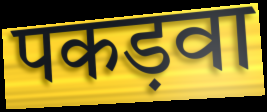
पकड़वा